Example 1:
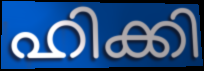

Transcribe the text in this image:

ഹിക്കി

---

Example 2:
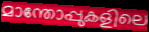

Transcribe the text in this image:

മാന്തോപ്പുകളിലെ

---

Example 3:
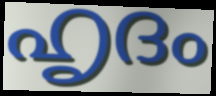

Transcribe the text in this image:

ഹൃദം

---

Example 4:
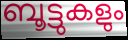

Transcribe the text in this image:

ബൂട്ടുകളും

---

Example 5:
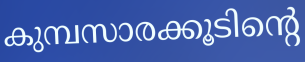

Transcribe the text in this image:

കുമ്പസാരക്കൂടിന്റെ